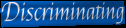
Discriminating